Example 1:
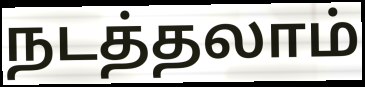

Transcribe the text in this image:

நடத்தலாம்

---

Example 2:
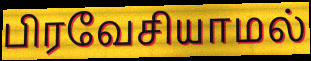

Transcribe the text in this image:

பிரவேசியாமல்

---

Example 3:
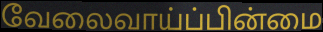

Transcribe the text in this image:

வேலைவாய்ப்பின்மை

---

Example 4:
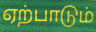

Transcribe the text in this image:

ஏற்பாடும்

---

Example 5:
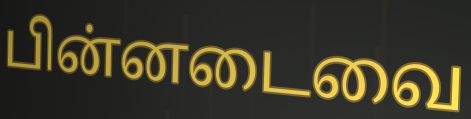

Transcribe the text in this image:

பின்னடைவை